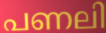
പണലി